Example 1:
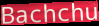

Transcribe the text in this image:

Bachchu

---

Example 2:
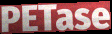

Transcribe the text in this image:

PETase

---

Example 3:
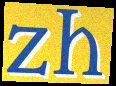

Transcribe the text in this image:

zh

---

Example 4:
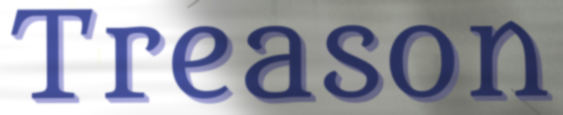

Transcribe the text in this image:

Treason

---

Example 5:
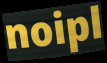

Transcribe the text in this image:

noipl